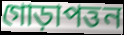
গোড়াপত্তন